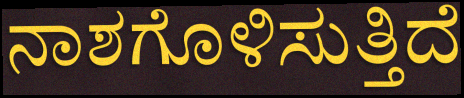
ನಾಶಗೊಳಿಸುತ್ತಿದೆ